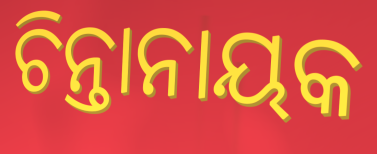
ଚିନ୍ତାନାୟକ